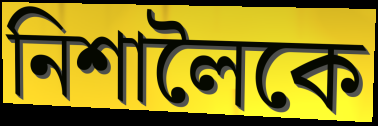
নিশালৈকে